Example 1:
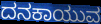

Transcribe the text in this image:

ದನಕಾಯುವ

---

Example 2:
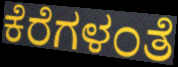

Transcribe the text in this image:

ಕೆರೆಗಳಂತೆ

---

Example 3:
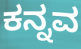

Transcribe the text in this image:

ಕನ್ನವ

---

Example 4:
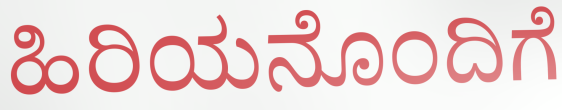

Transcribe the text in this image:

ಹಿರಿಯನೊಂದಿಗೆ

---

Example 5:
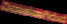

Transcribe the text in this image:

ವಿವಾಹವಾಗಿರುವ